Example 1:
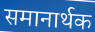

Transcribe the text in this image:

समानार्थक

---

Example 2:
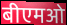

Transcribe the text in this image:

बीएमओ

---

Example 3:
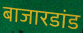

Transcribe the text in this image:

बाजारडांड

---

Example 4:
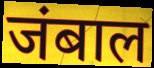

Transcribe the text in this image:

जंबाल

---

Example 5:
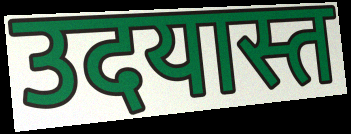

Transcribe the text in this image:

उदयास्त